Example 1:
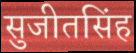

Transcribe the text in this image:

सुजीतसिंह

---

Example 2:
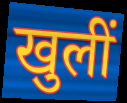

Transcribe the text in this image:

खुलीं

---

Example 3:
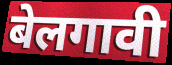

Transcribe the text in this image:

बेलगावी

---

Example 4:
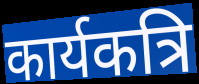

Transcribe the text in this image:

कार्यकत्रि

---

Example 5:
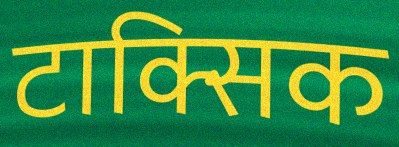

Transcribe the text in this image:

टाक्सिक